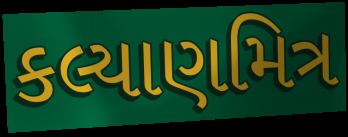
કલ્યાણમિત્ર